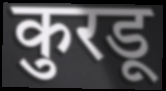
कुरडू